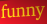
funny